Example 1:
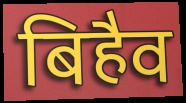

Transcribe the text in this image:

बिहैव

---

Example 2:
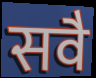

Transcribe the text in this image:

सवै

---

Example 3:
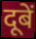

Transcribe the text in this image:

दूबें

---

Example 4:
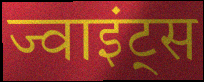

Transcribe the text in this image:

ज्वाइंट्स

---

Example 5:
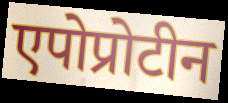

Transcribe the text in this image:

एपोप्रोटीन